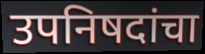
उपनिषदांचा